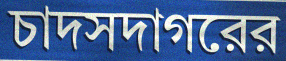
চাদসদাগরের